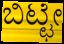
ಬಿಟ್ಟೇ